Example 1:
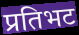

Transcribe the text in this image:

प्रतिभट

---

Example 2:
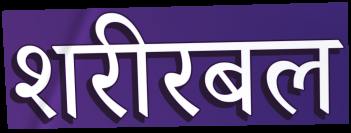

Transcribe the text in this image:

शरीरबल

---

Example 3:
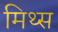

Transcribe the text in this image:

मिथ्स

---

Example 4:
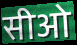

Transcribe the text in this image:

सीओ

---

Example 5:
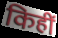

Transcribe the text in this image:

किहीं